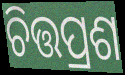
ଚିତ୍ତପ୍ରଶ